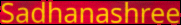
Sadhanashree